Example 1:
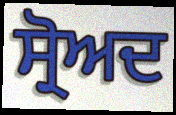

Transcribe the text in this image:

ਸ੍ਰੋਅਦ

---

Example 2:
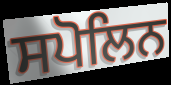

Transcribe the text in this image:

ਸਪੋਲਿਨ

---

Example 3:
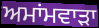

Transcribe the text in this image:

ਅਮਾਂਮਵਾੜਾ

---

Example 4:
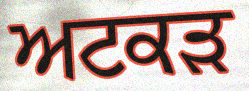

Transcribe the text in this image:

ਅਟਕੜ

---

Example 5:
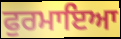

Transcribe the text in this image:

ਫੁਰਮਾਇਆ